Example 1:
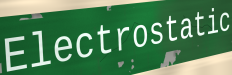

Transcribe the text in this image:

Electrostatic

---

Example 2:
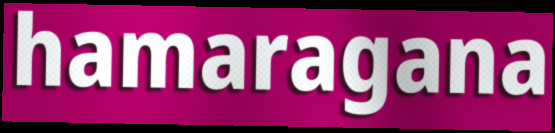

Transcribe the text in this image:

hamaragana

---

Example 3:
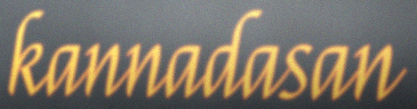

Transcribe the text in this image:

kannadasan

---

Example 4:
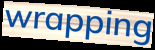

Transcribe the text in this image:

wrapping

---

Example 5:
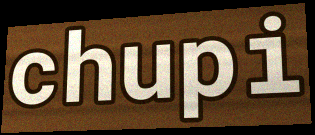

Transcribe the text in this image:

chupi